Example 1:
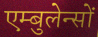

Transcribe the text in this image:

एम्बुलेन्सों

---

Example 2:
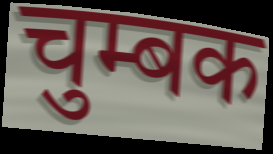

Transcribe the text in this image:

चुम्बक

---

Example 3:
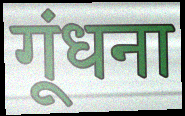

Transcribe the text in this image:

गूंधना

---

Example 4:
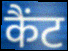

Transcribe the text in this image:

कैंट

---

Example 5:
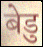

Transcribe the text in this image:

बेडु